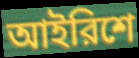
আইরিশে